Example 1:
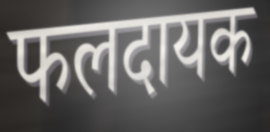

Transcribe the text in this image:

फलदायक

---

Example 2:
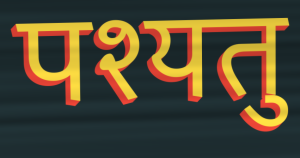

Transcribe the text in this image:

पश्यतु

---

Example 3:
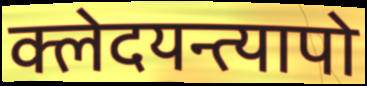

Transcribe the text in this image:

क्लेदयन्त्यापो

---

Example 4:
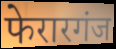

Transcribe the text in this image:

फेरारगंज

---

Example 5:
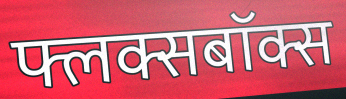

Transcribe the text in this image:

फ्लक्सबॉक्स